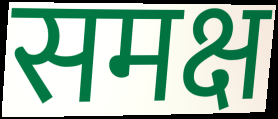
समक्ष